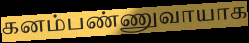
கனம்பண்ணுவாயாக